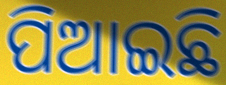
ପିଆଇଛି